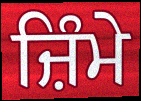
ਜ਼ਿੰਮੇ